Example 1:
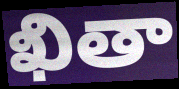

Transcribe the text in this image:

ఖితా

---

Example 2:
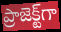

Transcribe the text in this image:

ప్రాజెక్ట్‌గా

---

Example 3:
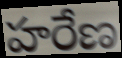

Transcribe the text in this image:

హరేణ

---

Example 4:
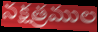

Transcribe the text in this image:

నక్షత్రముల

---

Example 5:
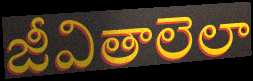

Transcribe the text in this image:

జీవితాలెలా